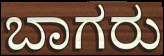
ಬಾಗರು